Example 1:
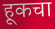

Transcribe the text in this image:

हूकचा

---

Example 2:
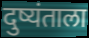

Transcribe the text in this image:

दुष्यंताला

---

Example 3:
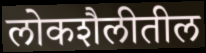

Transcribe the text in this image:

लोकशैलीतील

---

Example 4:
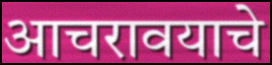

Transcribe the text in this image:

आचरावयाचे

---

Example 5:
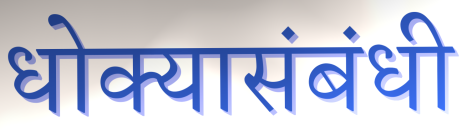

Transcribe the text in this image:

धोक्यासंबंधी